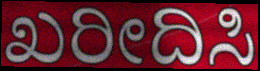
ಖರೀದಿಸಿ